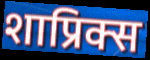
शाप्रिक्स